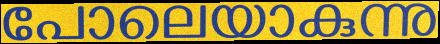
പോലെയാകുന്നു